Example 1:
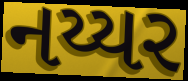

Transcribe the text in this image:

નય્યર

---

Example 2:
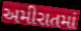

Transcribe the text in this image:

અમીરાતમાં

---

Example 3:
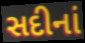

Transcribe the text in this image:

સદીનાં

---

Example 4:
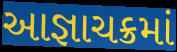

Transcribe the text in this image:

આજ્ઞાચક્રમાં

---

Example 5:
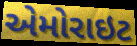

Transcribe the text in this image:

એમોરાઇટ